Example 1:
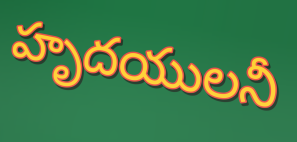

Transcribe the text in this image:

హృదయులనీ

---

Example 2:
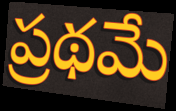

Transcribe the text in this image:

ప్రథమే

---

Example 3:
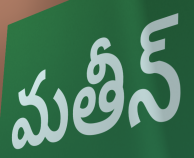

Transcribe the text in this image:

మతీన్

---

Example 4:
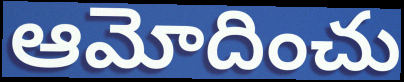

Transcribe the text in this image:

ఆమోదించు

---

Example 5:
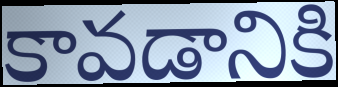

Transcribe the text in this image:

కావడానికి